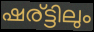
ഷര്ട്ടിലും